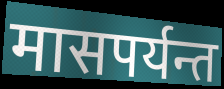
मासपर्यन्त